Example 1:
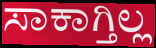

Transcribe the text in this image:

ಸಾಕಾಗ್ತಿಲ್ಲ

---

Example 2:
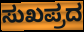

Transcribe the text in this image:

ಸುಖಪ್ರದ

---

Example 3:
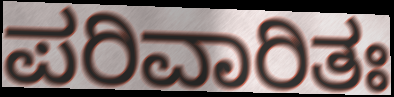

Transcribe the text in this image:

ಪರಿವಾರಿತಃ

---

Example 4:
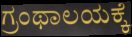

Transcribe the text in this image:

ಗ್ರಂಥಾಲಯಕ್ಕೆ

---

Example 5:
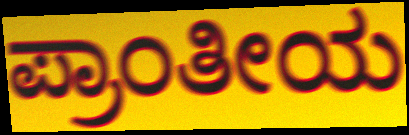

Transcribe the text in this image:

ಪ್ರಾಂತೀಯ